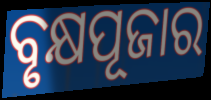
ବୃକ୍ଷପୂଜାର